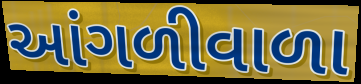
આંગળીવાળા